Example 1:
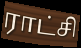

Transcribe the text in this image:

ராட்சி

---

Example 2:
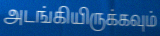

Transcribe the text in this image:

அடங்கியிருக்கவும்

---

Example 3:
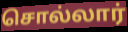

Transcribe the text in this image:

சொல்லார்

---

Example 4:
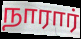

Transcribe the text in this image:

நாரார்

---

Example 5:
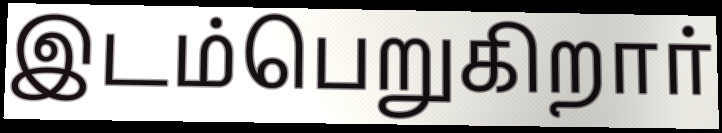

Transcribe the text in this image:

இடம்பெறுகிறார்